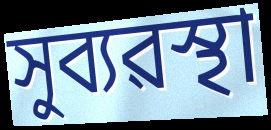
সুব্যৱস্থা